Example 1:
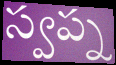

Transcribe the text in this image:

స్వప్న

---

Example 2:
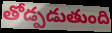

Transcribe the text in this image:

తోడ్పడుతుంది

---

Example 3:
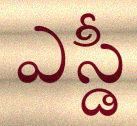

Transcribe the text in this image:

ఎస్డీ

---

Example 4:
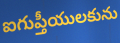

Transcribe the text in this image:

ఐగుప్తీయులకును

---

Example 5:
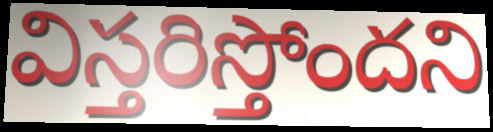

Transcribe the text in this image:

విస్తరిస్తోందని